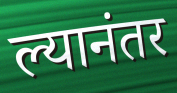
ल्यानंतर